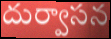
దుర్వాసన